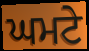
ਘਮਟੇ